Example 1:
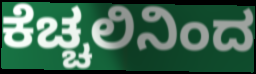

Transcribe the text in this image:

ಕೆಚ್ಚಲಿನಿಂದ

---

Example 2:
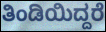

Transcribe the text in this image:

ತಿಂಡಿಯಿದ್ದರೆ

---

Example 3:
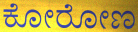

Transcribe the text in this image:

ಕೋರೋಣ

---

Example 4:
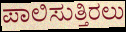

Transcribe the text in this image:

ಪಾಲಿಸುತ್ತಿರಲು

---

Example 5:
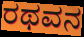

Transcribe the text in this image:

ರಥವನ